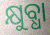
କ୍ଷୁବ୍ଧା